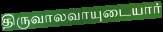
திருவாலவாயுடையார்